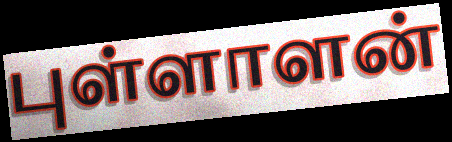
புள்ளாளன்